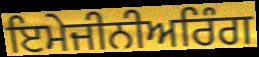
ਇਮੇਜੀਨੀਅਰਿੰਗ